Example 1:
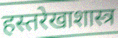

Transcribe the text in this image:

हस्तरेखाशास्त्र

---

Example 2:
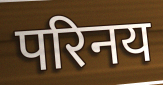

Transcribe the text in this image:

परिनय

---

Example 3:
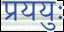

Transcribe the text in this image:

प्रययुः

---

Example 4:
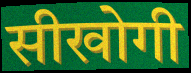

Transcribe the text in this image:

सीखोगी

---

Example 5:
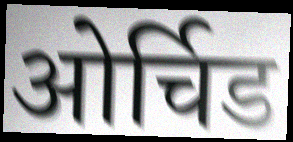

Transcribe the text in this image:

ओर्चिड